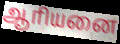
ஆரியனை